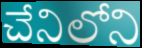
చేనిలోని